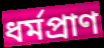
ধর্মপ্রাণ